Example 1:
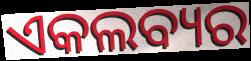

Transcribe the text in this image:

ଏକଲବ୍ୟର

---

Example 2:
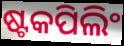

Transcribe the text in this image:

ଷ୍ଟକପିଲିଂ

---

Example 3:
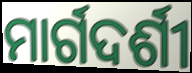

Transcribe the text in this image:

ମାର୍ଗଦର୍ଶୀ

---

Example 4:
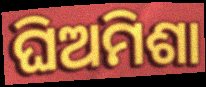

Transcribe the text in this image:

ଘିଅମିଶା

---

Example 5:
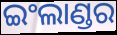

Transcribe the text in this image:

ଇଂଲାଣ୍ଡର